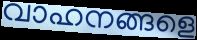
വാഹനങ്ങളെ